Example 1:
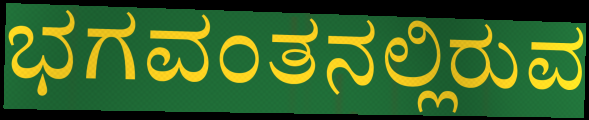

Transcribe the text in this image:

ಭಗವಂತನಲ್ಲಿರುವ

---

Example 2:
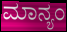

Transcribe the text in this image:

ಮಾನ್ಯಂ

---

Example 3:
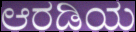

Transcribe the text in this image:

ಆರಡಿಯ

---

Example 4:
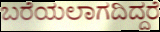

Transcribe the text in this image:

ಬರೆಯಲಾಗದಿದ್ದರೆ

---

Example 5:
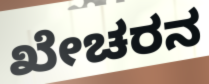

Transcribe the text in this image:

ಖೇಚರನ